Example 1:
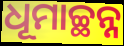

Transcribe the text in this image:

ଧୂମାଚ୍ଛନ୍ନ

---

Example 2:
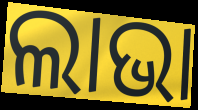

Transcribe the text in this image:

ଲାଭା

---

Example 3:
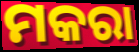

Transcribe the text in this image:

ମକରା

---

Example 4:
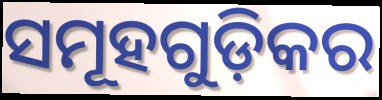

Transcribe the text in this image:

ସମୂହଗୁଡ଼ିକର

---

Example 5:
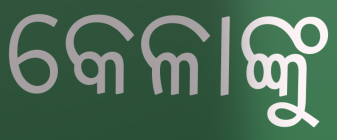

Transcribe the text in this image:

କେଳାଙ୍କୁ